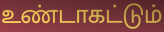
உண்டாகட்டும்